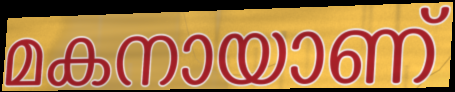
മകനായാണ്